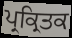
ਪ੍ਰਕ੍ਰਿਤਕ